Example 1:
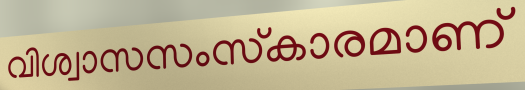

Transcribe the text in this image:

വിശ്വാസസംസ്‌കാരമാണ്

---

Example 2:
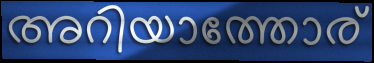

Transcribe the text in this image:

അറിയാത്തോര്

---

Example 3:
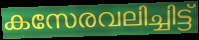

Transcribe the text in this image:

കസേരവലിച്ചിട്ട്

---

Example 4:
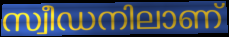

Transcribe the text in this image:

സ്വീഡനിലാണ്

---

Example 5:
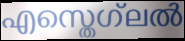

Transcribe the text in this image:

എസ്തെഗ്‌ലൽ